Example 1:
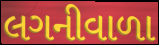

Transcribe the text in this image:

લગનીવાળા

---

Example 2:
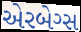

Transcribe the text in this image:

એરબેગ્સ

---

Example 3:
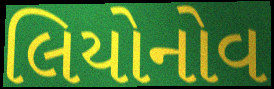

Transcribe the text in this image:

લિયોનોવ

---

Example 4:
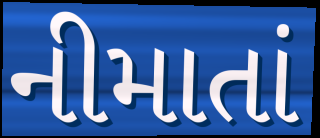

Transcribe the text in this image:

નીમાતાં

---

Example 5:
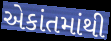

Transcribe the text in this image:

એકાંતમાંથી